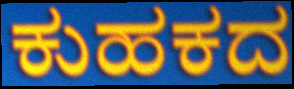
ಕುಹಕದ